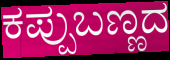
ಕಪ್ಪುಬಣ್ಣದ